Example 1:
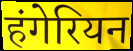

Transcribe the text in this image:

हंगेरियन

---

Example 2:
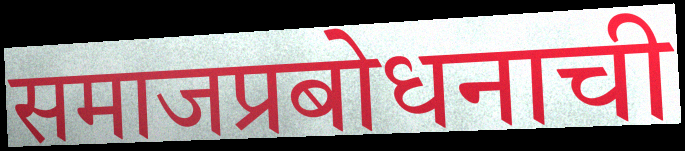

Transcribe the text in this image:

समाजप्रबोधनाची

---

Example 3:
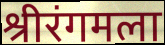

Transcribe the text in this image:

श्रीरंगमला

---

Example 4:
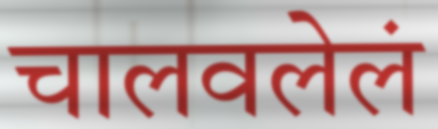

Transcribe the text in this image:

चालवलेलं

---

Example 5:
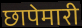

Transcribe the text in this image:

छापेमारी